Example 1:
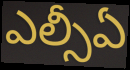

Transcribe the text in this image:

ఎల్సీఏ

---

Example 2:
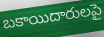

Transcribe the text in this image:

బకాయిదారులపై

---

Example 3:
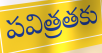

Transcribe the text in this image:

పవిత్రతకు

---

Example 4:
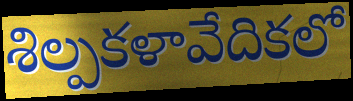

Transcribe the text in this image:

శిల్పకళావేదికలో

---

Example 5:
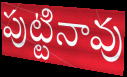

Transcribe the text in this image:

పుట్టినావు